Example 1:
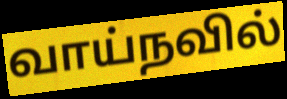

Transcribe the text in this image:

வாய்நவில்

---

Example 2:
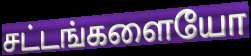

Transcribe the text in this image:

சட்டங்களையோ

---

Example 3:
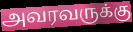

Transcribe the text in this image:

அவரவருக்கு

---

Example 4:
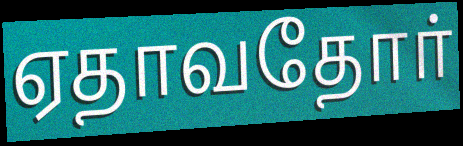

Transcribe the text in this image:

ஏதாவதோர்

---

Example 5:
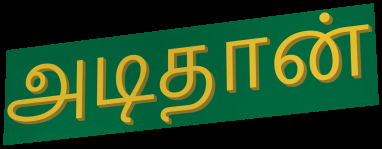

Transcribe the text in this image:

அடிதான்